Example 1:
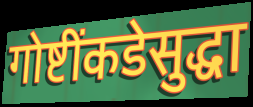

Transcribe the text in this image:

गोष्टींकडेसुद्धा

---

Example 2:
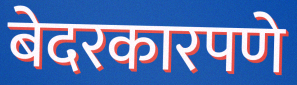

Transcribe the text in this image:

बेदरकारपणे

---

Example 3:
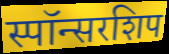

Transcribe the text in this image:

स्पॉन्सरशिप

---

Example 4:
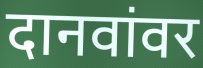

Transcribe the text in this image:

दानवांवर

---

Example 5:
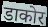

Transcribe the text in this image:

डाकोर